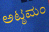
ಅಟ್ಠಮಂ